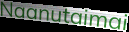
Naanutaimai